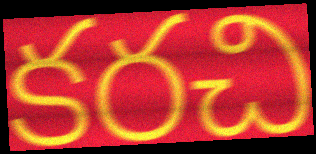
కరచి